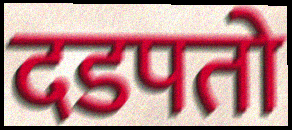
दडपतो